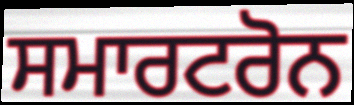
ਸਮਾਰਟਰੋਨ